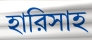
হারিসাহ